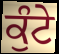
ਕੁੰਟੇ